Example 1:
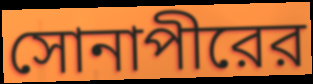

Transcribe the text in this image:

সোনাপীরের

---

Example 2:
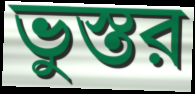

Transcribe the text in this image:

ভুস্তর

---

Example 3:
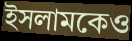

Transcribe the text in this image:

ইসলামকেও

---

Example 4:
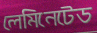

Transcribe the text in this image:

লেমিনেটেড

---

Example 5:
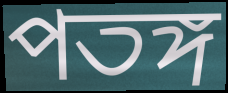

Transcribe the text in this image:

পতঙ্গ